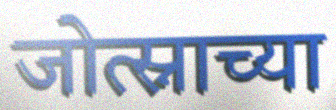
जोत्स्नाच्या